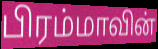
பிரம்மாவின்